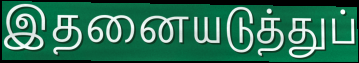
இதனையடுத்துப்